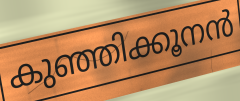
കുഞ്ഞിക്കൂനൻ